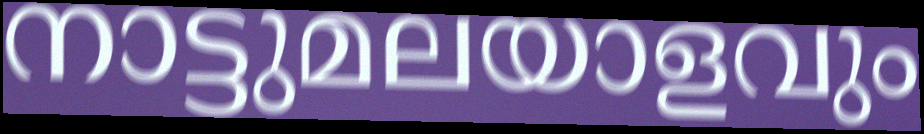
നാട്ടുമലയാളവും